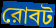
রোবট